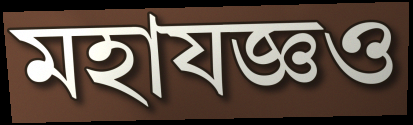
মহাযজ্ঞও